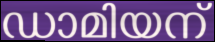
ഡാമിയന്